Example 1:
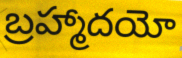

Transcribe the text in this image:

బ్రహ్మాదయో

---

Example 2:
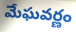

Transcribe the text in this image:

మేఘవర్ణం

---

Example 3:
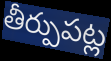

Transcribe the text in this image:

తీర్పుపట్ల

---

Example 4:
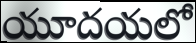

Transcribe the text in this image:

యూదయలో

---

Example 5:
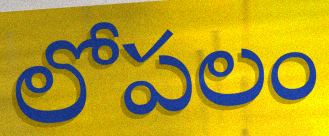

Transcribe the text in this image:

లోపలం